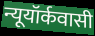
न्यूयॉर्कवासी